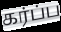
கர்ப்ப